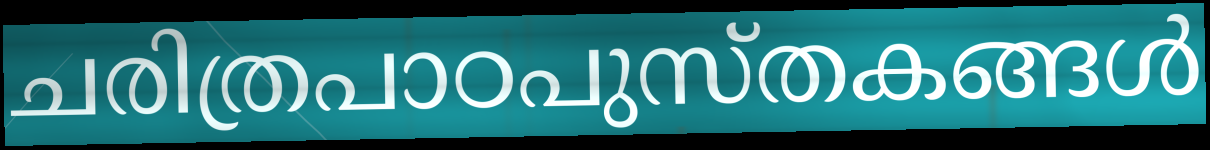
ചരിത്രപാഠപുസ്തകങ്ങൾ